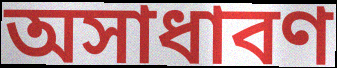
অসাধাবণ